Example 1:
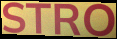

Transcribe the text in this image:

STRO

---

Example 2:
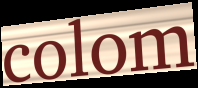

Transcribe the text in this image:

colom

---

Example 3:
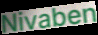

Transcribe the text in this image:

Nivaben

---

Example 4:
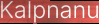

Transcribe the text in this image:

Kalpnanu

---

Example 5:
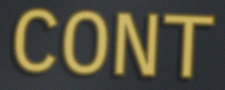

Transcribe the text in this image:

CONT